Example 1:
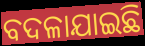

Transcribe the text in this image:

ବଦଳାଯାଇଛି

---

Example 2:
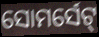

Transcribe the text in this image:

ସୋମର୍ସେଟ୍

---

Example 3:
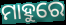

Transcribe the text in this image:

ମାହୁରେ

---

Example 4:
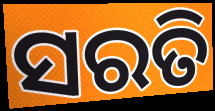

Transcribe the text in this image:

ସରତି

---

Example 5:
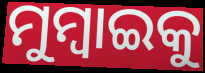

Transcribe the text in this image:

ମୁମ୍ବାଇକୁ